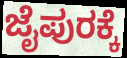
ಜೈಪುರಕ್ಕೆ